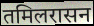
तमिलरासन